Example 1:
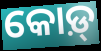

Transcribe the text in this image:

କୋଡ଼୍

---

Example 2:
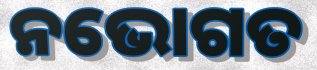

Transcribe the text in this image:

ନଭୋଗତ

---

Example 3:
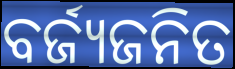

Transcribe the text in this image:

ବର୍ଜ୍ୟଜନିତ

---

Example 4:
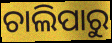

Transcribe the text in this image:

ଚାଲିପାରୁ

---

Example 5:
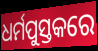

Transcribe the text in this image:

ଧର୍ମପୁସ୍ତକରେ